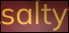
salty